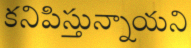
కనిపిస్తున్నాయని